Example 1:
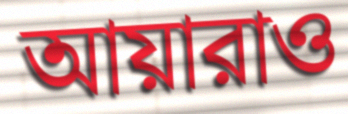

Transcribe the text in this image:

আয়ারাও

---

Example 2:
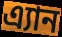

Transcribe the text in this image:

এ্যান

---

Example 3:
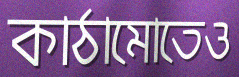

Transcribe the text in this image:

কাঠামোতেও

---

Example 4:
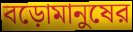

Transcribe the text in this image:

বড়োমানুষের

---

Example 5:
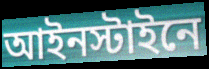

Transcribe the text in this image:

আইনস্টাইনে